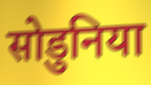
सोडुनिया